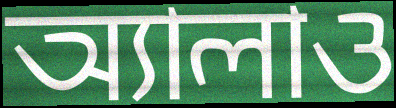
অ্যালাও